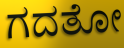
ಗದತೋ